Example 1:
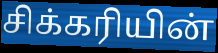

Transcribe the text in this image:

சிக்கரியின்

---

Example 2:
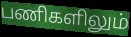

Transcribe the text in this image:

பணிகளிலும்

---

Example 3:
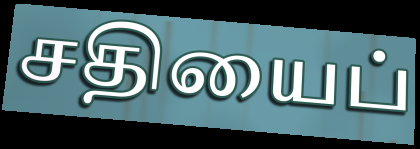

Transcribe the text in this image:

சதியைப்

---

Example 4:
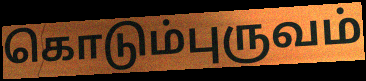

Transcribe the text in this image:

கொடும்புருவம்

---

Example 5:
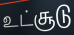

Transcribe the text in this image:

உட்சூடு